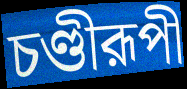
চণ্ডীরূপী